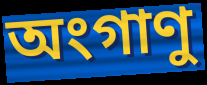
অংগাণু